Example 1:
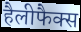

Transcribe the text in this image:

हैलीफैक्स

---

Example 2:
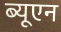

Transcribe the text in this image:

ब्यूएन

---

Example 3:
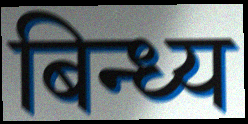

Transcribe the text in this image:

बिन्ध्य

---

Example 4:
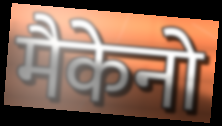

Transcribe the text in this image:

मैकेनो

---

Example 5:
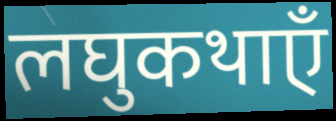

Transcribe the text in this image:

लघुकथाएँ